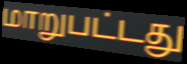
மாறுபட்டது